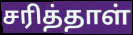
சரித்தாள்